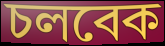
চলবেক